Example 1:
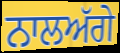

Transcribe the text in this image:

ਨਾਲਅੱਗੇ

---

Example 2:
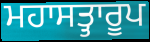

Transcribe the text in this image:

ਮਹਾਸਤ੍ਤਾਰੂਪ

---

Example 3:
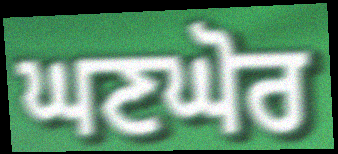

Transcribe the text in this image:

ਘਣਘੋਰ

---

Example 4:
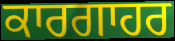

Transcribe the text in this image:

ਕਾਰਗਾਹਰ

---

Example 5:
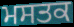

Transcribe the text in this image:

ਮਸਤਕ